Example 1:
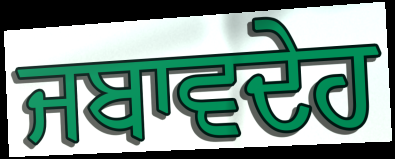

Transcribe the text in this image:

ਜਬਾਵਦੇਹ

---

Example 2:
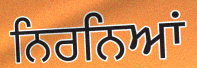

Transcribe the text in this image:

ਨਿਰਨਿਆਂ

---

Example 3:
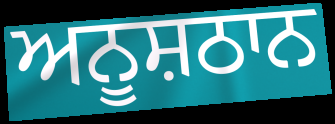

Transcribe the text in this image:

ਅਨੂਸ਼ਠਾਨ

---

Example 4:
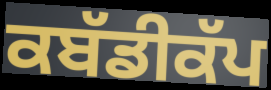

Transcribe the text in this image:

ਕਬੱਡੀਕੱਪ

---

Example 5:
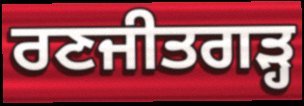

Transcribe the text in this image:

ਰਣਜੀਤਗੜ੍ਹ